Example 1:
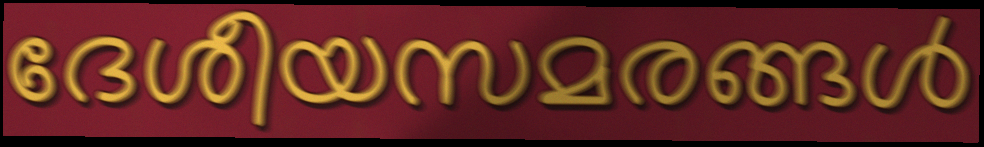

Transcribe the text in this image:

ദേശീയസമരങ്ങൾ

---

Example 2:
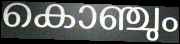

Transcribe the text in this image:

കൊഞ്ചും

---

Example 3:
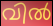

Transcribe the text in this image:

വിൽ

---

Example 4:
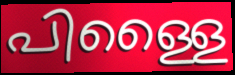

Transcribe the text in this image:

പിള്ളൈ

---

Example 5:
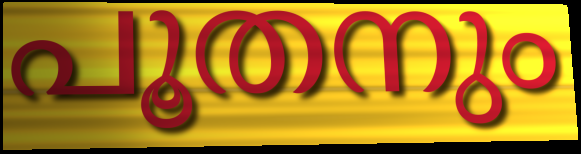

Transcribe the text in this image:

പൂതനും